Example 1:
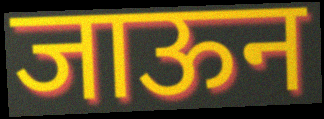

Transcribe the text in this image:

जाऊन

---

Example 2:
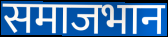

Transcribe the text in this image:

समाजभान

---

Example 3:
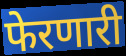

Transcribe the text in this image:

फेरणारी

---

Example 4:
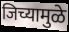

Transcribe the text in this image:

जिच्यामुळे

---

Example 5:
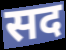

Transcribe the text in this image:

सद